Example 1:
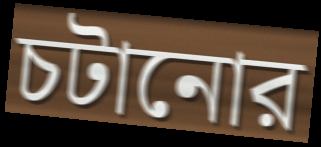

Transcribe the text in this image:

চটানোর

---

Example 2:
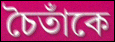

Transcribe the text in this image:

চৈতাঁকে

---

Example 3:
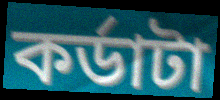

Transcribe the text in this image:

কর্ডাটা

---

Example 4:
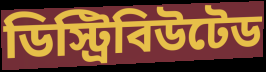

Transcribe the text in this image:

ডিস্ট্রিবিউটেড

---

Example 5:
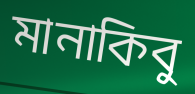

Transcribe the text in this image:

মানাকিবু